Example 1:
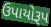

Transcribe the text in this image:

ઉપાયોરૂપ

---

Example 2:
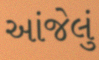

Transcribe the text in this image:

આંજેલું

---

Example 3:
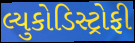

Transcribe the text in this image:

લ્યુકોડિસ્ટ્રોફી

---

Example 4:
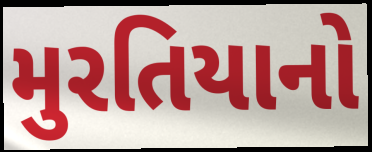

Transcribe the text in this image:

મુરતિયાનો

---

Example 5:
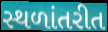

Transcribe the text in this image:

સ્થળાંતરીત